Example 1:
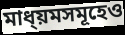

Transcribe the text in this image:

মাধ্য়মসমূহেও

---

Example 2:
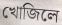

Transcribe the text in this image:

খোজিলে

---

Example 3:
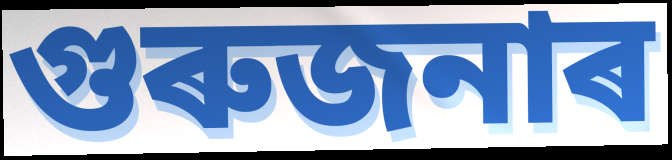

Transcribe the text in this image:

গুৰুজনাৰ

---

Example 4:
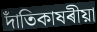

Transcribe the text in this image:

দাঁতিকাষৰীয়া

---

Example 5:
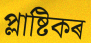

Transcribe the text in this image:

প্লাষ্টিকৰ